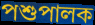
পশুপালক